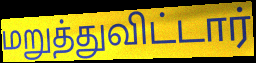
மறுத்துவிட்டார்